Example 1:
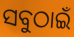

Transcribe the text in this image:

ସବୁଠାଇଁ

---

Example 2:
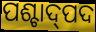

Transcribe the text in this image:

ପଶ୍ଚାଦ୍‍ପଦ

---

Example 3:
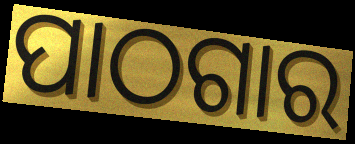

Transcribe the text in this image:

ପାଠଗାର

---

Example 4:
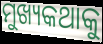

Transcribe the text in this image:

ମୁଖ୍ୟକଥାକୁ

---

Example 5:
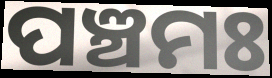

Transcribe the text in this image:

ପଞ୍ଚମଃ